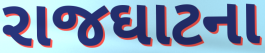
રાજઘાટના